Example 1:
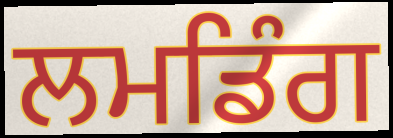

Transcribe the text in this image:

ਲਮਡਿੰਗ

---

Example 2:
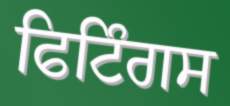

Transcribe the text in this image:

ਫਿਟਿੰਗਸ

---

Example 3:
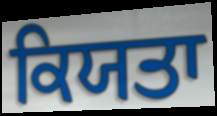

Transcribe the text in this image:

ਕਿਯਤਾ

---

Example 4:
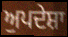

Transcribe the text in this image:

ਅੁਪਦੇਸ਼ਾ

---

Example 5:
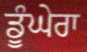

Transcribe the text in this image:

ਡੂੰਘੇਰਾ